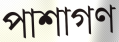
পাশাগণ